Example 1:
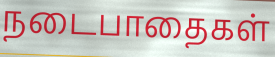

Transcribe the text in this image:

நடைபாதைகள்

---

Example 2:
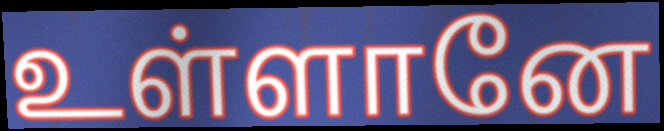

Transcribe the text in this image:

உள்ளானே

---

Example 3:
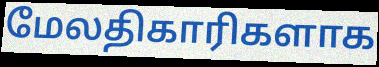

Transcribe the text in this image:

மேலதிகாரிகளாக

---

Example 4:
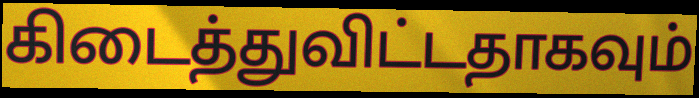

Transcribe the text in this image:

கிடைத்துவிட்டதாகவும்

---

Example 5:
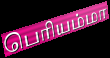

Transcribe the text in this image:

பெரியம்மா